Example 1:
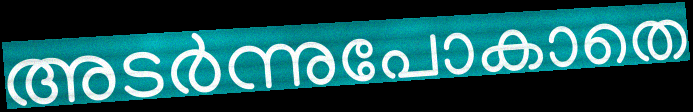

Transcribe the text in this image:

അടർന്നുപോകാതെ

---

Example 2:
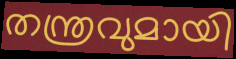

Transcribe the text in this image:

തന്ത്രവുമായി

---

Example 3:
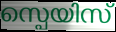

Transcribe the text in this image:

സ്പെയിസ്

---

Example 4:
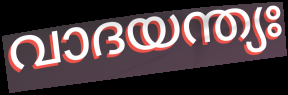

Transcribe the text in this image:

വാദയന്ത്യഃ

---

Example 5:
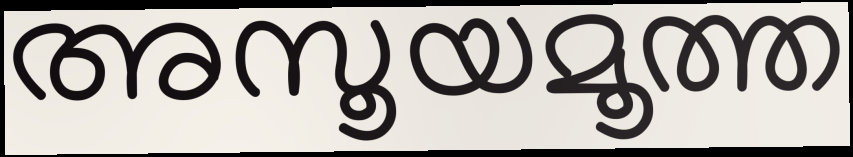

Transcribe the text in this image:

അസൂയമൂത്ത